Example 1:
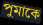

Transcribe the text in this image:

পুমাকে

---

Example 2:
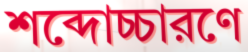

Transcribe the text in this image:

শব্দোচ্চারণে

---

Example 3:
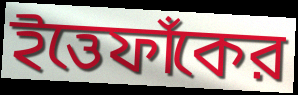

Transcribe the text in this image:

ইত্তেফাঁকের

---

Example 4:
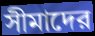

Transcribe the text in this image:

সীমাদের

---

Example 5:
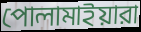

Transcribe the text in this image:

পোলামাইয়ারা